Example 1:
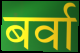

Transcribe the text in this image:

बर्वा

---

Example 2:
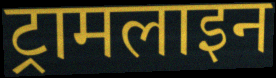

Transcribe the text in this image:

ट्रामलाइन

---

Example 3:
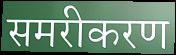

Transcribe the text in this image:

समरीकरण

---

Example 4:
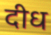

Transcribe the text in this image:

दीध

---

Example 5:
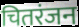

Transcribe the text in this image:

चितरंजन